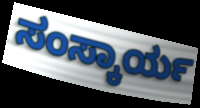
ಸಂಸ್ಕಾರ್ಯ